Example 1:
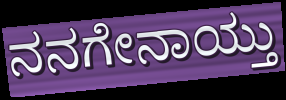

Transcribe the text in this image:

ನನಗೇನಾಯ್ತು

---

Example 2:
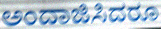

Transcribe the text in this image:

ಅಂದಾಜಿಸಿದರೂ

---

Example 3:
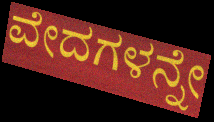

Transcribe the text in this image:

ವೇದಗಳನ್ನೇ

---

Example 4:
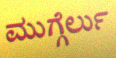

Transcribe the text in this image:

ಮುಗ್ಗೆರ್ಲು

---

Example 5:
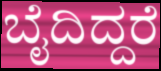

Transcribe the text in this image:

ಬೈದಿದ್ದರೆ